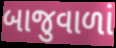
બાજુવાળાં